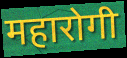
महारोगी